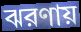
ঝরণায়